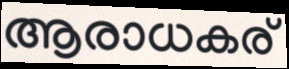
ആരാധകര്